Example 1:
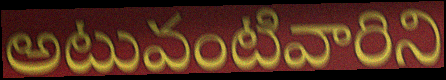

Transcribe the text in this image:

అటువంటివారిని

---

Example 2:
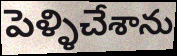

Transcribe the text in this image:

పెళ్ళిచేశాను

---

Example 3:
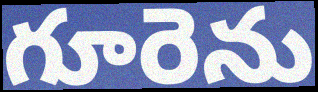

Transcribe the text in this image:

గూరెను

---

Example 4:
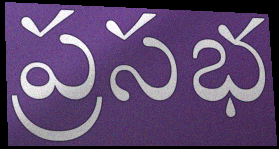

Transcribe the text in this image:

ప్రసభ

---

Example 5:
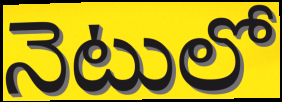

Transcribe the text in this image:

నెటులో